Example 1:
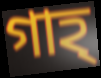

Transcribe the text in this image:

গাহ্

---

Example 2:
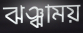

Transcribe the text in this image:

ঝঞ্ঝাময়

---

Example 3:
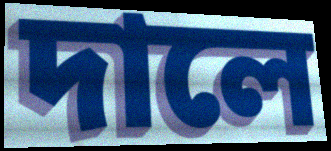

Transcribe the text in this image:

দালে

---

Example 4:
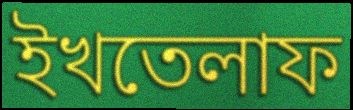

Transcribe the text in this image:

ইখতেলাফ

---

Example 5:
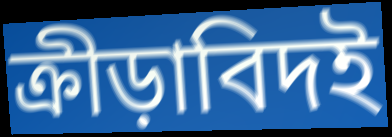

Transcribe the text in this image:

ক্রীড়াবিদই